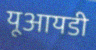
यूआयडी